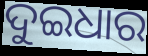
ଦୁଇଧାର